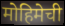
मोहिमेची